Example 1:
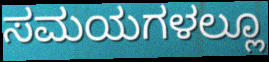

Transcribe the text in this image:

ಸಮಯಗಳಲ್ಲೂ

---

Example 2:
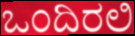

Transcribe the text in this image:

ಒಂದಿರಲಿ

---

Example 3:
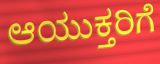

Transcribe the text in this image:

ಆಯುಕ್ತರಿಗೆ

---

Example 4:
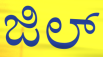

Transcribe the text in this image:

ಜಿಲ್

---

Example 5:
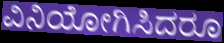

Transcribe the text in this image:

ವಿನಿಯೋಗಿಸಿದರೂ